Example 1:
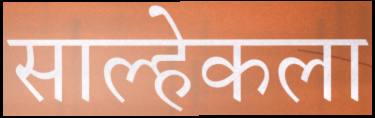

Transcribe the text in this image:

साल्हेकला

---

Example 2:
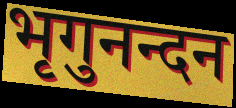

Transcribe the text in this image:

भृगुनन्दन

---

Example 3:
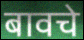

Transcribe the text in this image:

बावचे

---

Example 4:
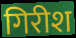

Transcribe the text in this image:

गिरीश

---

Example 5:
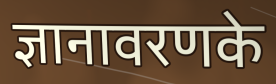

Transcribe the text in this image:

ज्ञानावरणके